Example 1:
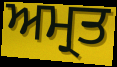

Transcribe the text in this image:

ਅਮ੍ਰਤ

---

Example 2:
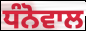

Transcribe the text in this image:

ਧੰਨੋਵਾਲ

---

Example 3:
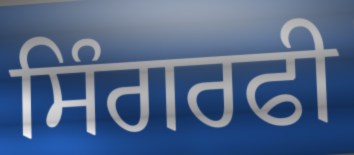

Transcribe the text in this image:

ਸਿੰਗਰਫੀ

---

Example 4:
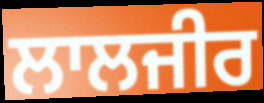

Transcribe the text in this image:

ਲਾਲਜੀਰ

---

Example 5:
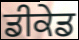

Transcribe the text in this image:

ਡੀਕੇਡ